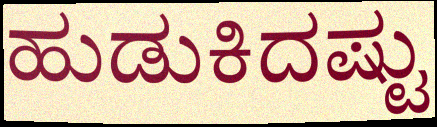
ಹುಡುಕಿದಷ್ಟು